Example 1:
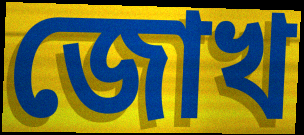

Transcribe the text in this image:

জোখ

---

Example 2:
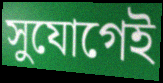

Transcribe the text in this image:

সুযোগেই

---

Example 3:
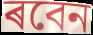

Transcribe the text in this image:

ৰবেন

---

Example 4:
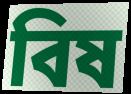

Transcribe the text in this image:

বিষ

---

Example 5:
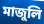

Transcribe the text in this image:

মাজুলি